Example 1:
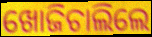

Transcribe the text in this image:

ଖୋଜିଚାଲିଲେ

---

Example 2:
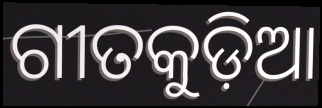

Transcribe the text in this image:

ଗୀତକୁଡ଼ିଆ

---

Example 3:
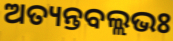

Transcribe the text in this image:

ଅତ୍ୟନ୍ତବଲ୍ଲଭଃ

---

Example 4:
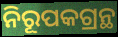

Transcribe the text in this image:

ନିରୂପକଗ୍ରନ୍ଥ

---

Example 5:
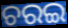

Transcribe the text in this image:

ଚରଇ